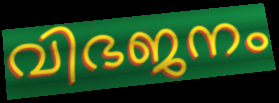
വിഭജനം